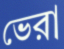
ভেরা